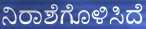
ನಿರಾಶೆಗೊಳಿಸಿದೆ